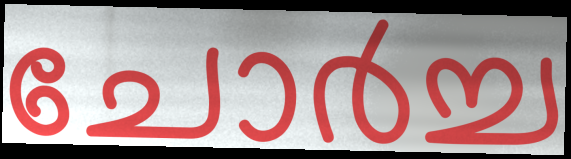
ചോർച്ച